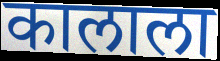
कालाला